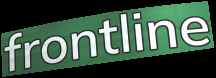
frontline